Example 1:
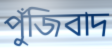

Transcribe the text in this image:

পুঁজিবাদ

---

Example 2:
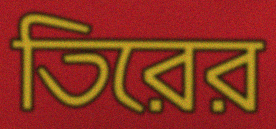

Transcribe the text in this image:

তিরের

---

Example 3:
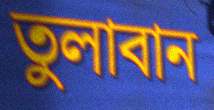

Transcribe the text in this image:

তুলাবান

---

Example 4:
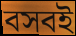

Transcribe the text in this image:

বসবই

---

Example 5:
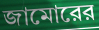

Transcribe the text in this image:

জামোরের